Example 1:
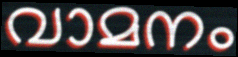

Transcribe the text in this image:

വാമനം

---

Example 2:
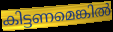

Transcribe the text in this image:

കിട്ടണമെങ്കിൽ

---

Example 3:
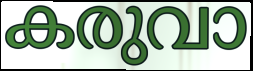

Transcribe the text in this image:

കരുവാ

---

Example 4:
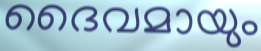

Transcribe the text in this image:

ദൈവമായും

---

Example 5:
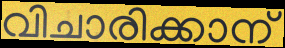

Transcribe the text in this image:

വിചാരിക്കാന്